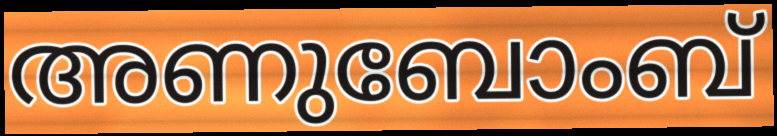
അണുബോംബ്